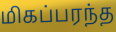
மிகப்பரந்த